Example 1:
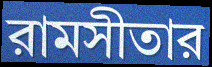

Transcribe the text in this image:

রামসীতার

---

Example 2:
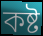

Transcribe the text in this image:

কষ্ট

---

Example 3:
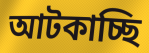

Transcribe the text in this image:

আটকাচ্ছি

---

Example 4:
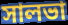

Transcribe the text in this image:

সালভা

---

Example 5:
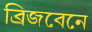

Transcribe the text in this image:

ব্রিজবেনে